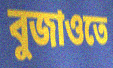
বুজাওতে